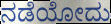
ನಡೆಯೋದು